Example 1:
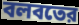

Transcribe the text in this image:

বলবতের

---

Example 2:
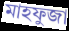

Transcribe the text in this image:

মাহফুজা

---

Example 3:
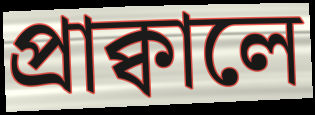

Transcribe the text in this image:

প্রাক্বালে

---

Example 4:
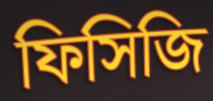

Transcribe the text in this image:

ফিসিজি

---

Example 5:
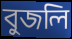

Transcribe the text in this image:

বুজলি